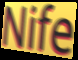
Nife